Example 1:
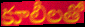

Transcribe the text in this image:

కూలీలతో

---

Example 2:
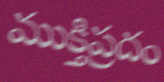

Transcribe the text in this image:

ముక్తిప్రదం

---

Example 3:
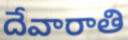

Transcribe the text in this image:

దేవారాతి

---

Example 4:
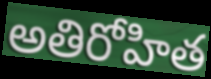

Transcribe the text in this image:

అతిరోహిత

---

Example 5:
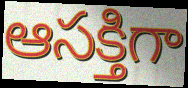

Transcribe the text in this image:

ఆసక్తిగా